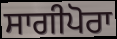
ਸਾਗੀਪੋਰਾ